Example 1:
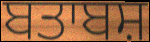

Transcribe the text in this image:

ਬਤਾਬਸ਼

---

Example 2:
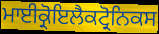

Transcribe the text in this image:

ਮਾਈਕ੍ਰੋਇਲੈਕਟ੍ਰੋਨਿਕਸ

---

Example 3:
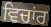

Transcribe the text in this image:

ਵਿਚਾਂਰ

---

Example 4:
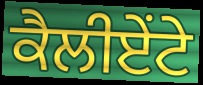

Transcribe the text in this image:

ਕੈਲੀਏਂਟੇ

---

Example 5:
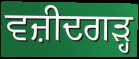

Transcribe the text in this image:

ਵਜ਼ੀਦਗੜ੍ਹ